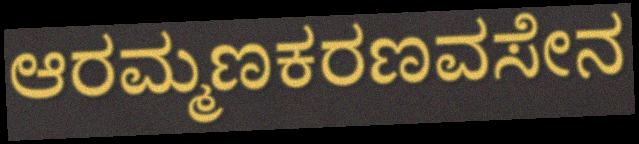
ಆರಮ್ಮಣಕರಣವಸೇನ